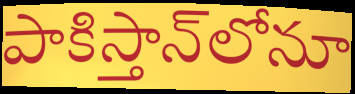
పాకిస్తాన్‌లోనూ